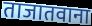
ताजातवाना